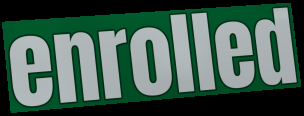
enrolled